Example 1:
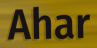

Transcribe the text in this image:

Ahar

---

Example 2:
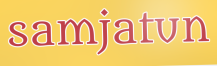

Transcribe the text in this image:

samjatun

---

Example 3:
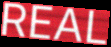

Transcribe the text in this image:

REAL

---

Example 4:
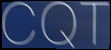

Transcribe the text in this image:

CQT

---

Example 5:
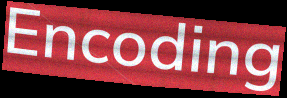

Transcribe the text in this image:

Encoding